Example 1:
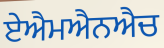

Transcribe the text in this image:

ਏਐਮਐਨਐਚ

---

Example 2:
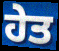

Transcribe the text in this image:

ਹੇਤ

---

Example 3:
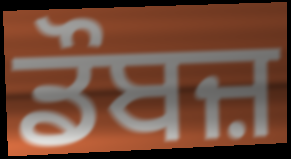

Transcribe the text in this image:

ਡੌਬਜ਼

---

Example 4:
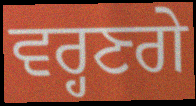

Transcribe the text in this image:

ਵਰ੍ਹਣਗੇ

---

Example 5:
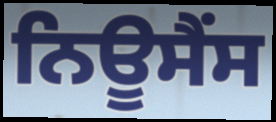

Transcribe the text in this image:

ਨਿਊਸੈਂਸ